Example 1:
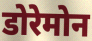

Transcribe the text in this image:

डोरेमोन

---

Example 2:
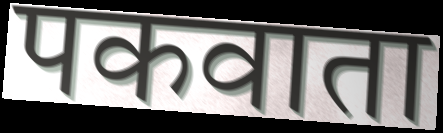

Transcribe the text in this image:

पकवाता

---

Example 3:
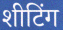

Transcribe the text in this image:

शीटिंग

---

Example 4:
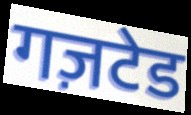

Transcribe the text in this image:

गज़टेड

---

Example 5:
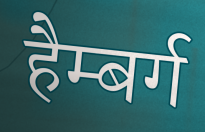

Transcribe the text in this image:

हैम्बर्ग